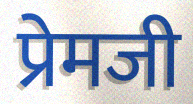
प्रेमजी